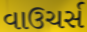
વાઉચર્સ